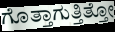
ಗೊತ್ತಾಗುತ್ತಿತ್ತೋ